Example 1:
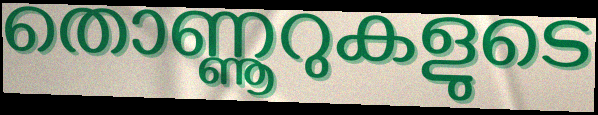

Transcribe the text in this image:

തൊണ്ണൂറുകളുടെ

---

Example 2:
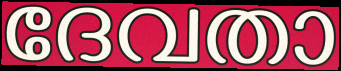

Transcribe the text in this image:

ദേവതാ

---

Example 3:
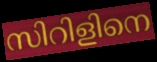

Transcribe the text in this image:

സിറിളിനെ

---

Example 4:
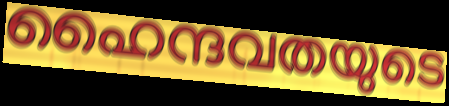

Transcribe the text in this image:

ഹൈന്ദവതയുടെ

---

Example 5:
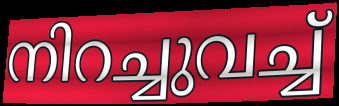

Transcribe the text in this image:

നിറച്ചുവച്ച്